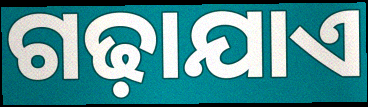
ଗଢ଼ାଯାଏ